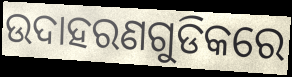
ଉଦାହରଣଗୁଡିକରେ